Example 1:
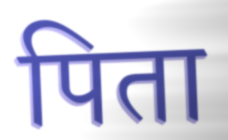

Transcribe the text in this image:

पिता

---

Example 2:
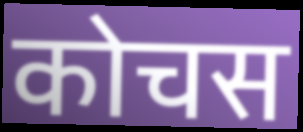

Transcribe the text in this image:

कोचस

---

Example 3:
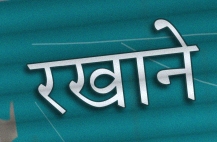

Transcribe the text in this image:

रखाने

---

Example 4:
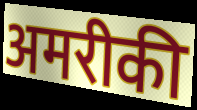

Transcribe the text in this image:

अमरीकी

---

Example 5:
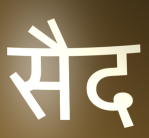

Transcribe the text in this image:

सैद